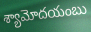
శ్యామోదయంబు